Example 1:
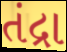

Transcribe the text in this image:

તંદ્રા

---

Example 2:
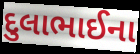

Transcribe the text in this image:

દુલાભાઈના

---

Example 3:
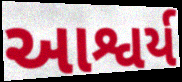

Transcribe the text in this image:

આશ્વર્ય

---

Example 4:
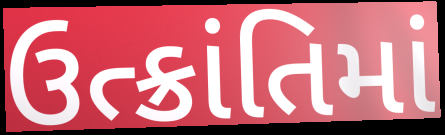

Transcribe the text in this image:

ઉત્ક્રાંતિમાં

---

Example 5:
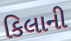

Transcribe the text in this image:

કિલાની